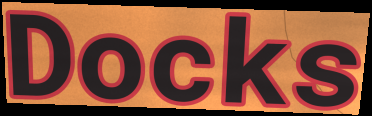
Docks